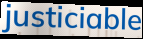
justiciable